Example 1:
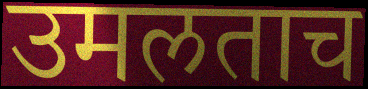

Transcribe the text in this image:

उमलताच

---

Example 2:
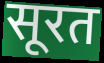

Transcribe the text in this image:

सूरत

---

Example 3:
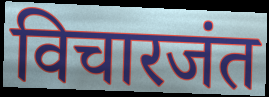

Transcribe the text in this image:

विचारजंत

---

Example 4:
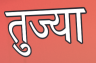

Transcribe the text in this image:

तुज्या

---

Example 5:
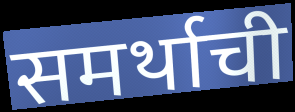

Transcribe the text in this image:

समर्थाची